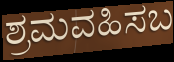
ಶ್ರಮವಹಿಸಬ